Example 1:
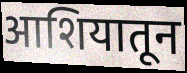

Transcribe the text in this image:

आशियातून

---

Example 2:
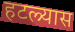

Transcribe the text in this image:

हटल्यास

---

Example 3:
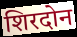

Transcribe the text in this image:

शिरदोन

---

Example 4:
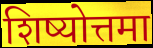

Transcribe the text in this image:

शिष्योत्तमा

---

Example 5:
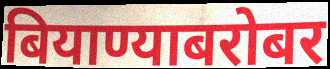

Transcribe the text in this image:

बियाण्याबरोबर